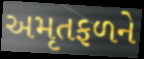
અમૃતફળને